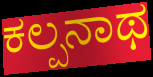
ಕಲ್ಪನಾಥ